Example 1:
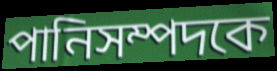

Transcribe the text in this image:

পানিসম্পদকে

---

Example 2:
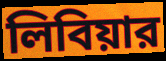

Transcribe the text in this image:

লিবিয়ার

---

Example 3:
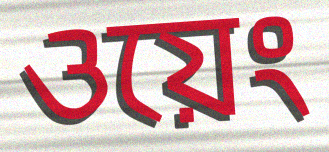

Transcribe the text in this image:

ওয়েং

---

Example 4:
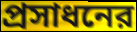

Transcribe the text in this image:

প্রসাধনের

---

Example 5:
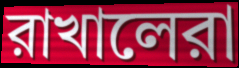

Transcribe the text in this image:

রাখালেরা